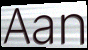
Aan